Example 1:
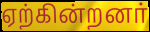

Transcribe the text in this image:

ஏற்கின்றனர்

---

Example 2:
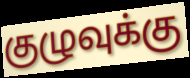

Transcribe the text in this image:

குழுவுக்கு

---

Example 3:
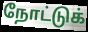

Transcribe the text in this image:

நோட்டுக்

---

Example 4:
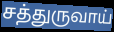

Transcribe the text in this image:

சத்துருவாய்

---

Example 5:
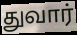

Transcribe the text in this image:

துவார்